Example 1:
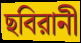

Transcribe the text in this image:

ছবিরানী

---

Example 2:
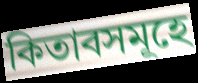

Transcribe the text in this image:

কিতাবসমূহে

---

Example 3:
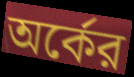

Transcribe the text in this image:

অর্কের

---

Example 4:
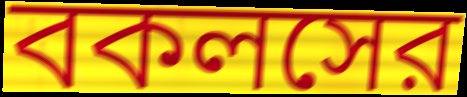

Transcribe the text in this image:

বকলসের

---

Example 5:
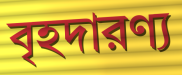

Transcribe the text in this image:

বৃহদারণ্য